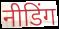
नीडिंग